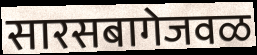
सारसबागेजवळ